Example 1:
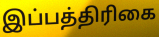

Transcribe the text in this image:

இப்பத்திரிகை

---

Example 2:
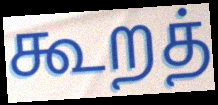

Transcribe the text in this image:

கூறத்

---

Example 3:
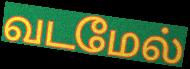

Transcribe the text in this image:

வடமேல்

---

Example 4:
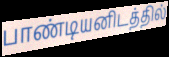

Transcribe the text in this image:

பாண்டியனிடத்தில்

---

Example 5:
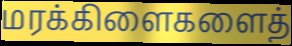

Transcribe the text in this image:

மரக்கிளைகளைத்